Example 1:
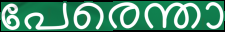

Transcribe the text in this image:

പേരെന്താ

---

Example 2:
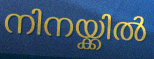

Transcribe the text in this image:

നിനയ്ക്കിൽ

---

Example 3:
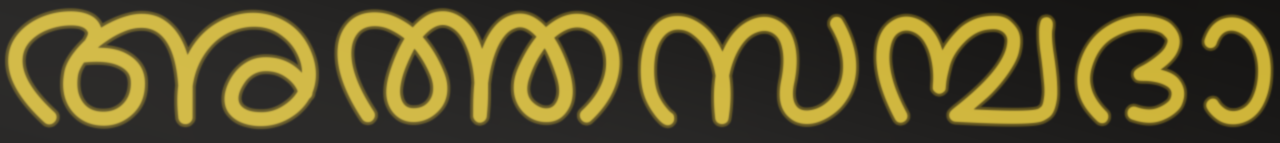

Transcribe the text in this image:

അത്തസമ്പദാ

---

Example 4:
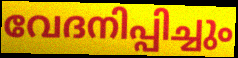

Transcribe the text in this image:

വേദനിപ്പിച്ചും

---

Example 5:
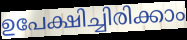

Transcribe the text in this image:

ഉപേക്ഷിച്ചിരിക്കാം